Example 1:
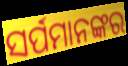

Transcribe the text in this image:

ସର୍ପମାନଙ୍କର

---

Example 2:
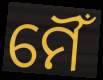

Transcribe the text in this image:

ମୈଁ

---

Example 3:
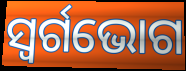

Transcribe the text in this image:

ସ୍ୱର୍ଗଭୋଗ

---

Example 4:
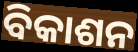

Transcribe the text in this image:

ବିକାଶନ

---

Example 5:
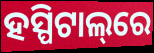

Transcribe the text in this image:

ହସ୍ପିଟାଲ୍‌ରେ